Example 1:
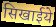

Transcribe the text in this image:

सिखाईये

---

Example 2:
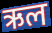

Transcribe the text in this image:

ऋल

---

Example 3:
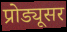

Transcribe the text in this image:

प्रोड्यूसर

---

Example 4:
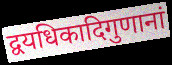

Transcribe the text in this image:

द्वयधिकादिगुणानां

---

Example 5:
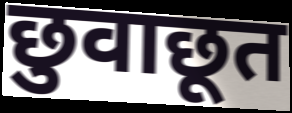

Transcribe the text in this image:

छुवाछूत